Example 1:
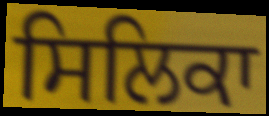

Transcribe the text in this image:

ਸਿਲਿਕਾ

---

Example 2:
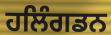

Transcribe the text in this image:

ਹਲਿੰਗਡਨ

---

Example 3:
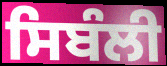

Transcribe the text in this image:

ਸਿਬੰਲੀ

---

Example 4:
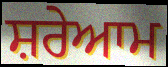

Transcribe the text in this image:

ਸ਼ਰੇਆਮ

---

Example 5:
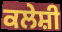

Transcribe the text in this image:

ਕਲੇਸ਼ੀ